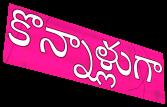
కొన్నాళ్లుగా